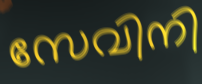
സേവിനി